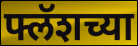
फ्लॅशच्या